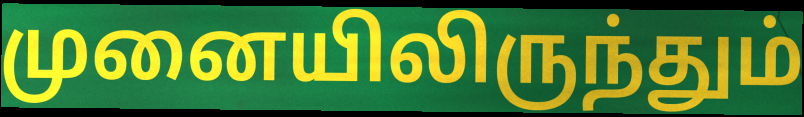
முனையிலிருந்தும்